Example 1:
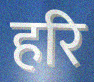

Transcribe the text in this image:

हरि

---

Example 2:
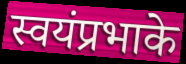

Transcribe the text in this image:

स्वयंप्रभाके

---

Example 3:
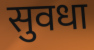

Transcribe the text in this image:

सुवधा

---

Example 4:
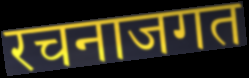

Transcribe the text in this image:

रचनाजगत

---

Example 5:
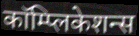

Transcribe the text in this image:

कॉम्प्लिकेशन्स